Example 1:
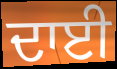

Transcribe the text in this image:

ਦਾਈ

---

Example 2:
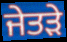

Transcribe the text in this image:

ਜੇਤੜੇ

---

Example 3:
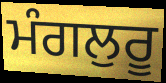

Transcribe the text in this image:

ਮੰਗਲੁਰੂ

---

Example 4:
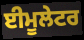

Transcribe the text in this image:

ਈਮੂਲੇਟਰ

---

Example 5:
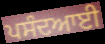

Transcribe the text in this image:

ਪਸੰਦਆਈ